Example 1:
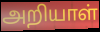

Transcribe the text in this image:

அறியாள்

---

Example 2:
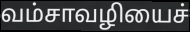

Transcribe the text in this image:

வம்சாவழியைச்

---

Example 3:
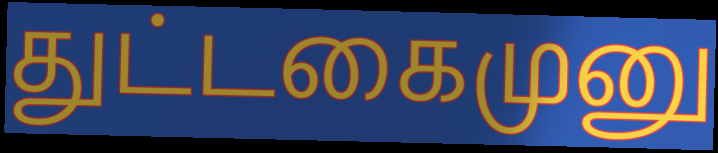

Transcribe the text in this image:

துட்டகைமுனு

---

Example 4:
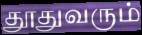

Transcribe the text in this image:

தூதுவரும்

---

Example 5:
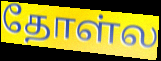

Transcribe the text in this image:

தோள்ல